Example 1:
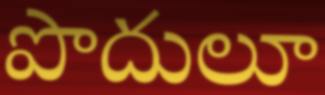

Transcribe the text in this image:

పొదులూ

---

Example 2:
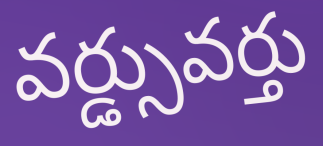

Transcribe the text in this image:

వర్డ్సువర్తు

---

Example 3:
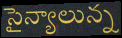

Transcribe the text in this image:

సైన్యాలున్న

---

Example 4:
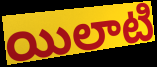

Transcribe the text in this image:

యిలాటి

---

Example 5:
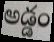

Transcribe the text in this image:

అడ్డం